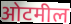
ओटमील